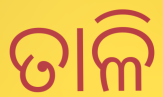
ତାଳି